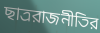
ছাত্ররাজনীতির